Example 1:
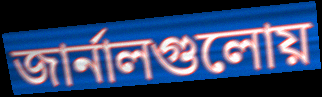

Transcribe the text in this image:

জার্নালগুলোয়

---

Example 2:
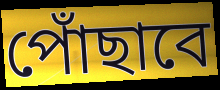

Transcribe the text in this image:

পোঁছাবে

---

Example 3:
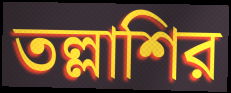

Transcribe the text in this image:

তল্লাশির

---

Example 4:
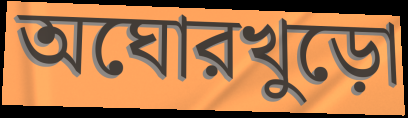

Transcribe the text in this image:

অঘোরখুড়ো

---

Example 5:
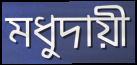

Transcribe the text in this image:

মধুদায়ী